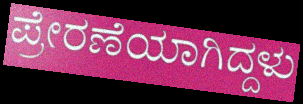
ಪ್ರೇರಣೆಯಾಗಿದ್ದಳು